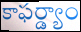
కాఫర్డ్యాం